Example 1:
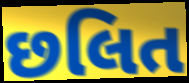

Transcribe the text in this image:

છલિત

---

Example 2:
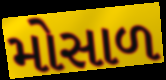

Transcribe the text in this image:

મોસાળ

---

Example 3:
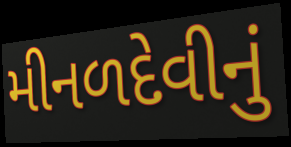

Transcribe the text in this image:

મીનળદેવીનું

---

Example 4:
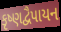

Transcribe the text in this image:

કૃષ્ણદ્વૈપાયન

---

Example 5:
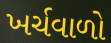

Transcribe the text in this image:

ખર્ચવાળો